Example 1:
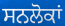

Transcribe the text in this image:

ਸਨਲੋਕਾਂ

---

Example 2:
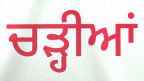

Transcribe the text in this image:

ਚੜ੍ਹੀਆਂ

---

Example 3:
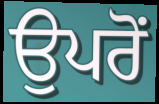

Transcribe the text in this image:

ਉਪਰੋਂ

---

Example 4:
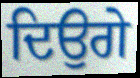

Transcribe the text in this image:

ਦਿਉਗੇ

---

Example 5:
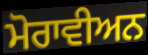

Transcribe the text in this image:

ਮੋਰਾਵੀਅਨ